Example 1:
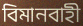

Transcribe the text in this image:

বিমানবাহী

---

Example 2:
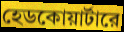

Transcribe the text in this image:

হেডকোয়ার্টারে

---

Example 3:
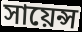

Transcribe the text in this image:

সায়েন্স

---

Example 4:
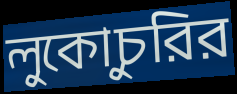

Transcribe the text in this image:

লুকোচুরির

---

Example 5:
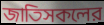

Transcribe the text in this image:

জাতিসকলের